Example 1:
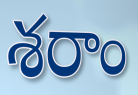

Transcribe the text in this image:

శరాం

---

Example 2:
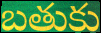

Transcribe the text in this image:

బతుకు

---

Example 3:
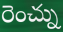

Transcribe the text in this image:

రెంచ్ను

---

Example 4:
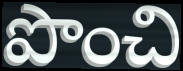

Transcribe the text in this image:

పొంచి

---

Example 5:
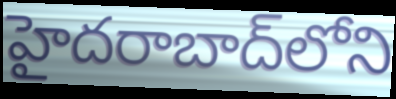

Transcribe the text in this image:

హైదరాబాద్‌లోని